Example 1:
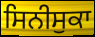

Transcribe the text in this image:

ਸਿਨੀਸੁਕਾ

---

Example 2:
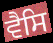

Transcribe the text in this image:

ਵੈਸਿ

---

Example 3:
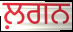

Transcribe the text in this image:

ਲ਼ਗਨ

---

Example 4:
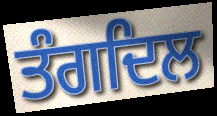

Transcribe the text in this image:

ਤੰਗਦਿਲ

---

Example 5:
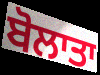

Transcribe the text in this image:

ਬੋਲਾਤਾ